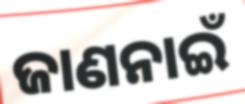
ଜାଣନାଇଁ